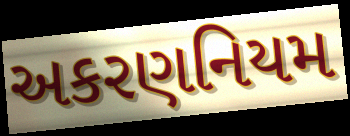
અકરણનિયમ